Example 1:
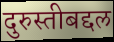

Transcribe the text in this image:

दुरुस्तीबद्दल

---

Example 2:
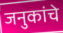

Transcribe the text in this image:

जनुकांचे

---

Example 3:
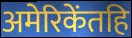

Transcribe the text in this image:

अमेरिकेंतहि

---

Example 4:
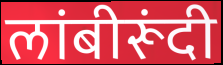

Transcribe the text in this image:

लांबीरूंदी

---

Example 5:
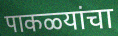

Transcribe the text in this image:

पाकळ्यांचा